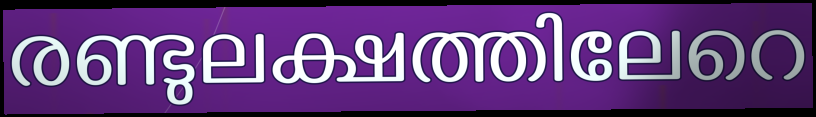
രണ്ടുലക്ഷത്തിലേറെ